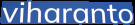
viharanto